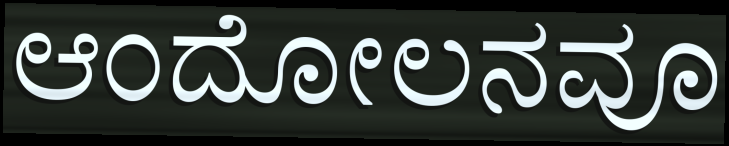
ಆಂದೋಲನವೂ